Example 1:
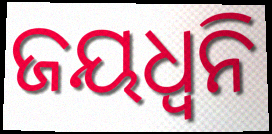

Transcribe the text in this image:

ଜୟଧ୍ଵନି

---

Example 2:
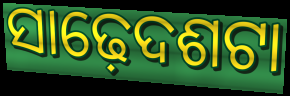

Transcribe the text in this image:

ସାଢ଼େଦଶଟା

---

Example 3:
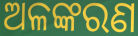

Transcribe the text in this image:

ଅଳଙ୍କରଣ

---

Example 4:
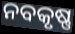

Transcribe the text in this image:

ନବକୃଷ୍ଣ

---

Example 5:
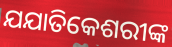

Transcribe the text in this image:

ଯଯାତିକେଶରୀଙ୍କ